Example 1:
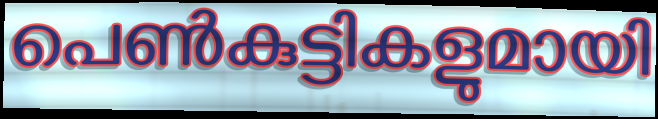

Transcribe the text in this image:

പെൺകുട്ടികളുമായി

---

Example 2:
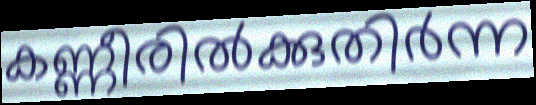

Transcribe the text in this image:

കണ്ണീരിൽക്കുതിർന്ന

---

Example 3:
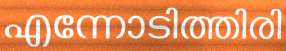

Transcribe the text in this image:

എന്നോടിത്തിരി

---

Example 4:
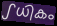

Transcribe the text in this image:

ഽധികം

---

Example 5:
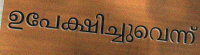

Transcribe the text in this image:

ഉപേക്ഷിച്ചുവെന്ന്